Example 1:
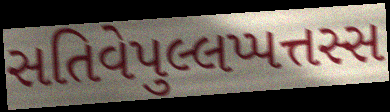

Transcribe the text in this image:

સતિવેપુલ્લપ્પત્તસ્સ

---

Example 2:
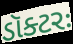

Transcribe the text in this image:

ડૉક્ટરઃ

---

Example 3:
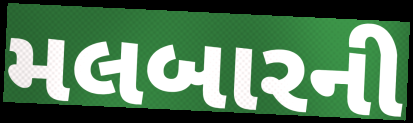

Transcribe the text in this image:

મલબારની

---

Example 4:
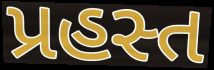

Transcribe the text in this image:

પ્રહસ્ત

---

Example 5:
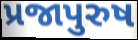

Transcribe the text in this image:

પ્રજાપુરુષ